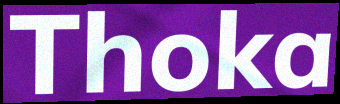
Thoka